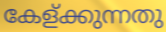
കേള്ക്കുന്നതു